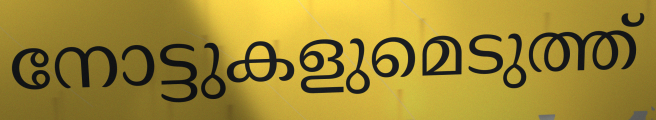
നോട്ടുകളുമെടുത്ത്